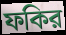
ফকির